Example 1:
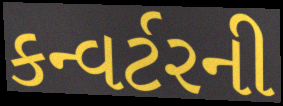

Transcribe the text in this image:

કન્વર્ટરની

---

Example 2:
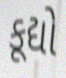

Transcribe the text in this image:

કૂદ્યો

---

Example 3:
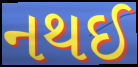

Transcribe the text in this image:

નથઈ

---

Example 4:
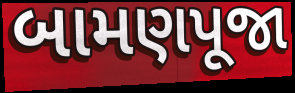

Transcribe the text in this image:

બામણપૂજા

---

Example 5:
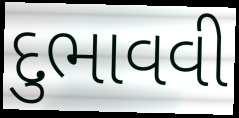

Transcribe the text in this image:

દુભાવવી